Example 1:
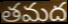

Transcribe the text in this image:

తమద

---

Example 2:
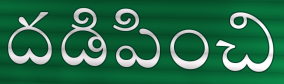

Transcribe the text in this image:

దడిపించి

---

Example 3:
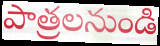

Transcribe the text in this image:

పాత్రలనుండి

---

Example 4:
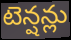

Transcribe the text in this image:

టెన్షన్లు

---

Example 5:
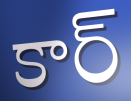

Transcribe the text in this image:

కార్